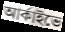
আর্কাইভে